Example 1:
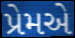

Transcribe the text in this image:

પ્રેમએ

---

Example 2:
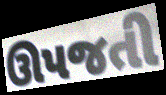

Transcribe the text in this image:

ઊપજતી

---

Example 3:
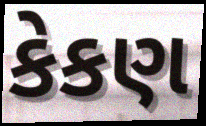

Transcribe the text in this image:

કેકણ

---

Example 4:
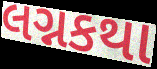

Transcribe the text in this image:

લગ્નકથા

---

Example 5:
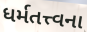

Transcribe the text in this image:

ધર્મતત્ત્વના